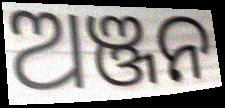
ଅଞ୍ଜନ